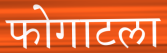
फोगाटला